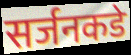
सर्जनकडे